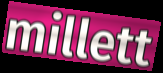
millett